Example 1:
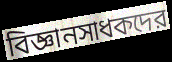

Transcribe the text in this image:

বিজ্ঞানসাধকদের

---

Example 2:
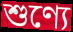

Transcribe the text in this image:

শুণ্যে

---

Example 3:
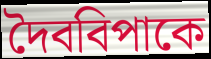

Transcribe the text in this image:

দৈববিপাকে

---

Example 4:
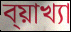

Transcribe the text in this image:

ব্য়াখ্যা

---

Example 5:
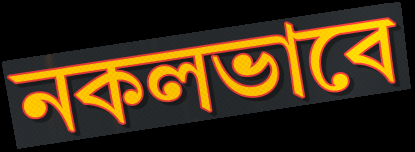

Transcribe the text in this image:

নকলভাবে